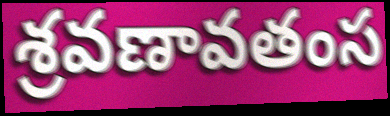
శ్రవణావతంస